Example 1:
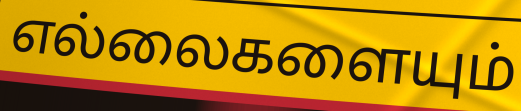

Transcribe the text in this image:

எல்லைகளையும்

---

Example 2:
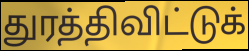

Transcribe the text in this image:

துரத்திவிட்டுக்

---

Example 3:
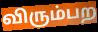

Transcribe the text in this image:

விரும்பற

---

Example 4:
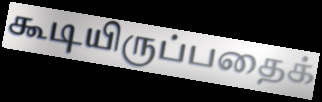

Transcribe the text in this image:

கூடியிருப்பதைக்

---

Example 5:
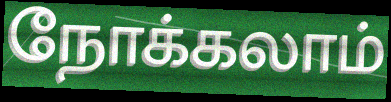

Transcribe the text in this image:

நோக்கலாம்